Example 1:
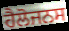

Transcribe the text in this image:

ਹੈਲੋਜਨਸ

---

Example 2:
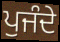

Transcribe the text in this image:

ਪੁਜੰਦੇ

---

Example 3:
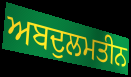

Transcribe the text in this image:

ਅਬਦੁਲਮਤੀਨ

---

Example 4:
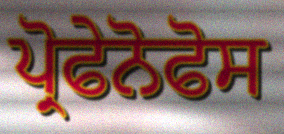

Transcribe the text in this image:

ਪ੍ਰੋਫੇਨੋਫੋਸ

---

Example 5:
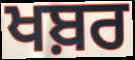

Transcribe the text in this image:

ਖਬ਼ਰ